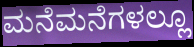
ಮನೆಮನೆಗಳಲ್ಲೂ